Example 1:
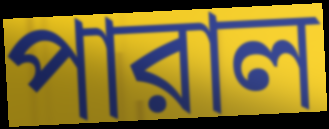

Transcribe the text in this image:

পারাল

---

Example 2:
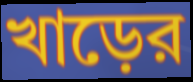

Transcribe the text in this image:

খাড়ের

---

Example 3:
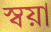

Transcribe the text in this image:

স্বয়া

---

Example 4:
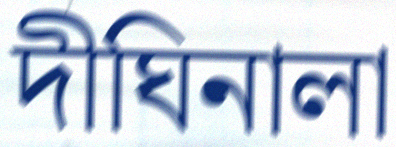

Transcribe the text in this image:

দীঘিনালা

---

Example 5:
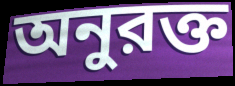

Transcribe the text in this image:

অনুরক্ত